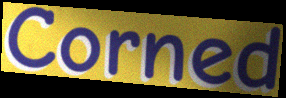
Corned